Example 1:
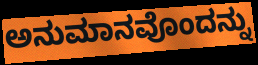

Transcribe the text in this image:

ಅನುಮಾನವೊಂದನ್ನು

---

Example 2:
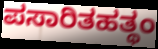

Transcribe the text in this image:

ಪಸಾರಿತಹತ್ಥಂ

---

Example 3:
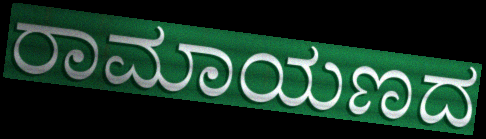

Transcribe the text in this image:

ರಾಮಾಯಣದ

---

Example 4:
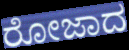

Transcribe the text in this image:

ರೋಜಾದ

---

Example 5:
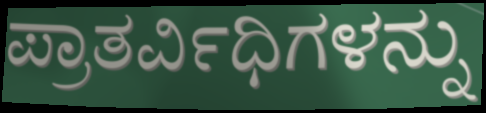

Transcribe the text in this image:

ಪ್ರಾತರ್ವಿಧಿಗಳನ್ನು